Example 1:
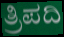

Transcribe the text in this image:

ತ್ರಿಪದಿ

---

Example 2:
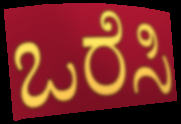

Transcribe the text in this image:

ಒರೆಸಿ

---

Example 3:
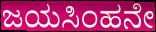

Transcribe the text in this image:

ಜಯಸಿಂಹನೇ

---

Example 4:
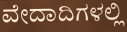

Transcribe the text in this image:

ವೇದಾದಿಗಳಲ್ಲಿ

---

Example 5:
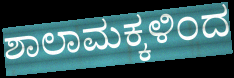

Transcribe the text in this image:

ಶಾಲಾಮಕ್ಕಳಿಂದ